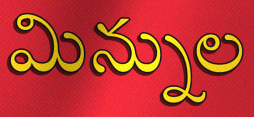
మిన్నుల